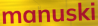
manuski